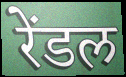
रेंडल